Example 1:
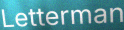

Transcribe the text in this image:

Letterman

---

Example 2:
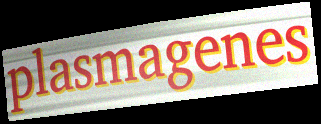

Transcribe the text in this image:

plasmagenes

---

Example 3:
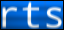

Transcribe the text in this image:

rts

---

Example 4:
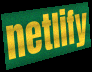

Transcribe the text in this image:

netlify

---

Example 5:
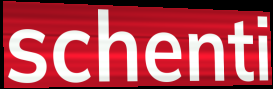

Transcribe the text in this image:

schenti